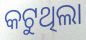
କଟୁଥିଲା